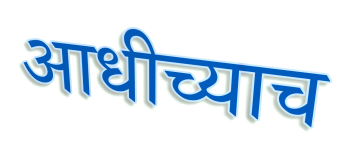
आधीच्याच